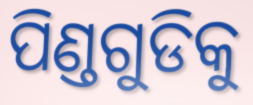
ପିଣ୍ଡଗୁଡିକୁ